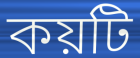
কয়টি